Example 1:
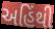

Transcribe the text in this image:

અહિંથી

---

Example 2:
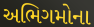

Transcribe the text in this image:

અભિગમોના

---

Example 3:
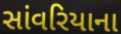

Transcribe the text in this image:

સાંવરિયાના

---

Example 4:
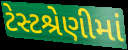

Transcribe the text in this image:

ટેસ્ટશ્રેણીમાં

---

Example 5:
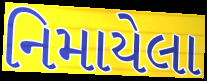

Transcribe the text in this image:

નિમાયેલા